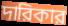
দারিকার